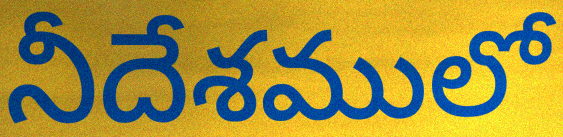
నీదేశములో